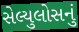
સેલ્યુલોસનું